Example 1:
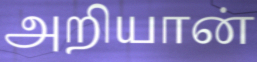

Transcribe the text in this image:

அறியான்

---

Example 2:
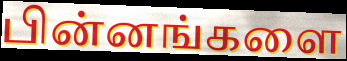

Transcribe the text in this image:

பின்னங்களை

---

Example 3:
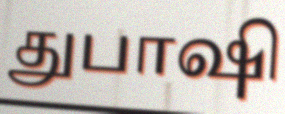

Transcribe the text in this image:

துபாஷி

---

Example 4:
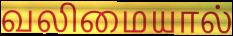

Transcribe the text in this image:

வலிமையால்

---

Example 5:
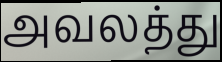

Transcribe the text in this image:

அவலத்து